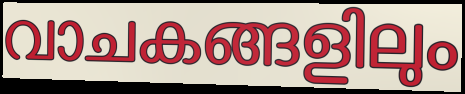
വാചകങ്ങളിലും